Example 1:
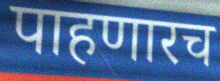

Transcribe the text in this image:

पाहणारच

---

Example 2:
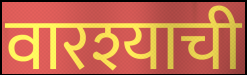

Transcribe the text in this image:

वारश्याची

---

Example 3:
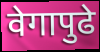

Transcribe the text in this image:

वेगापुढे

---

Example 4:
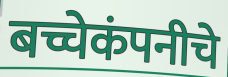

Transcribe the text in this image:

बच्चेकंपनीचे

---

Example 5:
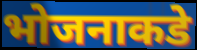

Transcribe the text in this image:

भोजनाकडे